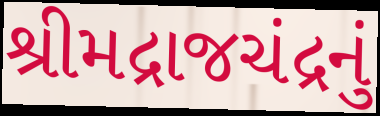
શ્રીમદ્રાજચંદ્રનું